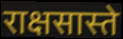
राक्षसास्ते